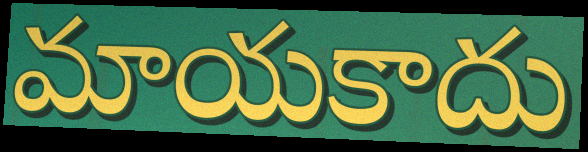
మాయకాదు